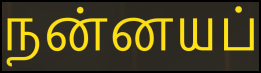
நன்னயப்